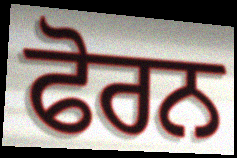
ਫੋਰਨ